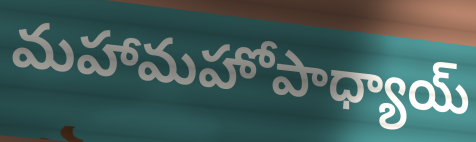
మహామహోపాధ్యాయ్